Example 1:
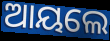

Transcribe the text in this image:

ଆୟଲେ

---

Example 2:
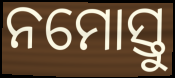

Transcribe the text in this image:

ନମୋସ୍ତୁ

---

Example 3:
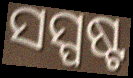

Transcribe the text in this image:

ସସ୍ପଷ୍ଟ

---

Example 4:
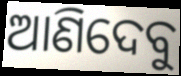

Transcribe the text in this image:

ଆଣିଦେବୁ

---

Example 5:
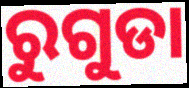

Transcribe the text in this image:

ରୁଗୁଡା